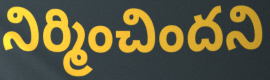
నిర్మించిందని